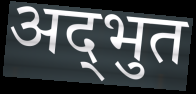
अद्‌भुत